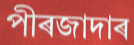
পীৰজাদাৰ